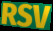
RSV